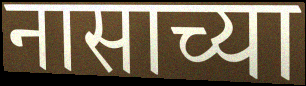
नासाच्या